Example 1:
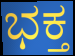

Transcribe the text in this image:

ಭಕ್ತ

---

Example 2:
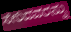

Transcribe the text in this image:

ಸೇರಿದವರನ್ನು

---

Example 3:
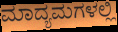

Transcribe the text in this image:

ಮಾದ್ಯಮಗಳಲ್ಲಿ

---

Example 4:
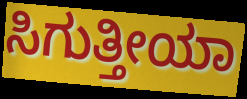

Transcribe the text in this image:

ಸಿಗುತ್ತೀಯಾ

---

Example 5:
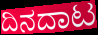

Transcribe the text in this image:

ದಿನದಾಟ